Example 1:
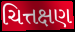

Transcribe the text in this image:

ચિત્તક્ષણ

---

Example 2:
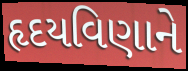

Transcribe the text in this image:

હૃદયવિણાને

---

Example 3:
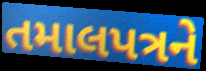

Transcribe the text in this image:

તમાલપત્રને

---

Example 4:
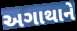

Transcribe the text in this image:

અગાથાને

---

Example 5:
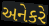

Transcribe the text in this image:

અનેકરે